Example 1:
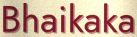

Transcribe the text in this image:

Bhaikaka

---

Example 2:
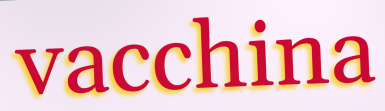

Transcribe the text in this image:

vacchina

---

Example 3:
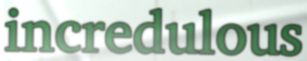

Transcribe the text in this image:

incredulous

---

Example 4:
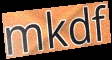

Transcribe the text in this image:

mkdf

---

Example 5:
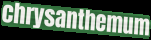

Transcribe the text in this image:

chrysanthemum